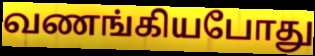
வணங்கியபோது